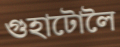
গুহাটোলৈ